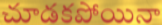
చూడకపోయినా